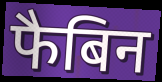
फैबिन